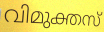
വിമുക്തസ്